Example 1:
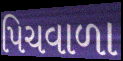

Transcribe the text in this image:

પિચવાળા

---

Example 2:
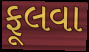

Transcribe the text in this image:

ફૂલવા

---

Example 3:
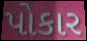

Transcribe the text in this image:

પોકાર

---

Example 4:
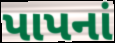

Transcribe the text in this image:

પાપનાં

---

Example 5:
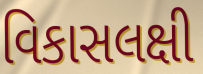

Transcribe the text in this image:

વિકાસલક્ષી